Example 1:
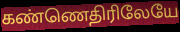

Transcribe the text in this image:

கண்ணெதிரிலேயே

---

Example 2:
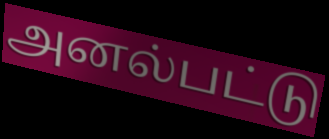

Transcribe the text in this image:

அனல்பட்டு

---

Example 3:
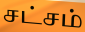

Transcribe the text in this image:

சட்சம்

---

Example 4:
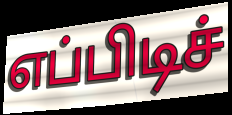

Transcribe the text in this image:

எப்பிடிச்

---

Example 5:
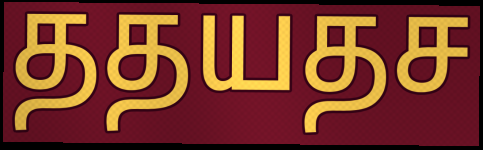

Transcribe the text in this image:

ததயதச